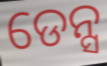
ଡେନ୍ସ